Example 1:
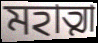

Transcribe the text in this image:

মহাত্মা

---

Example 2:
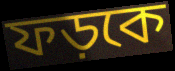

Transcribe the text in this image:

ফড়কে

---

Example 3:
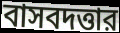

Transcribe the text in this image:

বাসবদত্তার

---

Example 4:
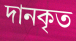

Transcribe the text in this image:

দানকৃত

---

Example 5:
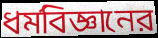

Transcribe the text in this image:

ধর্মবিজ্ঞানের